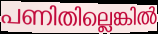
പണിതില്ലെങ്കിൽ